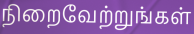
நிறைவேற்றுங்கள்